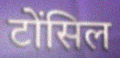
टोंसिल